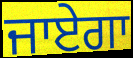
ਜਾਏਗਾ